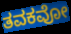
ತವಕವೋ